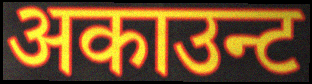
अकाउन्ट